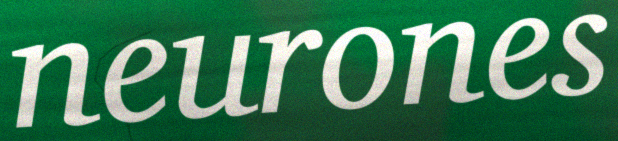
neurones